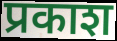
प्रकाश